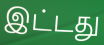
இட்டது